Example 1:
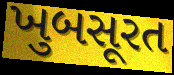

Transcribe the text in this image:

ખુબસૂરત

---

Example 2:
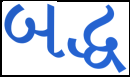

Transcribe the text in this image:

બદ્ધ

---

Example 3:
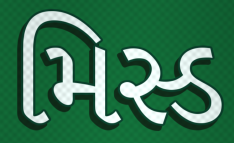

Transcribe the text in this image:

મિસ્ડ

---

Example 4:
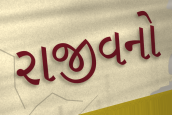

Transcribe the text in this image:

રાજીવનો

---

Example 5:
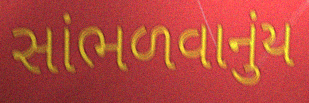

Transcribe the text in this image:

સાંભળવાનુંય